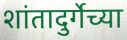
शांतादुर्गेच्या